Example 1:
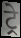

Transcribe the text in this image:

ट्रे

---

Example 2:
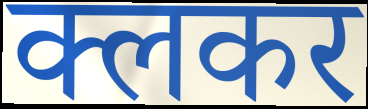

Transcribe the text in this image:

क्लकर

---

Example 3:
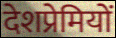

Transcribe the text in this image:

देशप्रेमियों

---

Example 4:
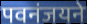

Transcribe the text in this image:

पवनंजयने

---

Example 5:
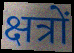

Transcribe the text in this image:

क्षत्रों